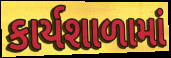
કાર્યશાળામાં